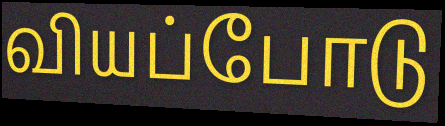
வியப்போடு